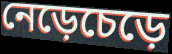
নেড়েচেড়ে